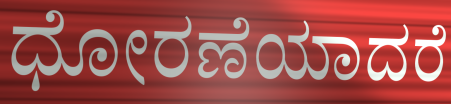
ಧೋರಣೆಯಾದರೆ